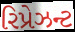
રિપ્રેઝન્ટ